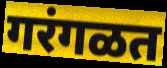
गरंगळत